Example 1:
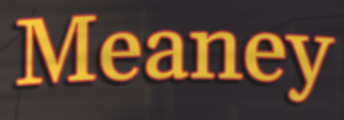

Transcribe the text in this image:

Meaney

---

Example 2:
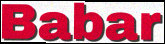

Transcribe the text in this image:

Babar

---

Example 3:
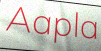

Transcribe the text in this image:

Aapla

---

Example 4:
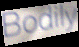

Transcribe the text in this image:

Bodily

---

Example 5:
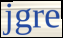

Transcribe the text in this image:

jgre